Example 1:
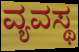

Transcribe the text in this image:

ವ್ಯವಸ್ಥ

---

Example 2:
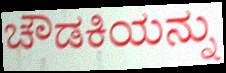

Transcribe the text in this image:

ಚೌಡಕಿಯನ್ನು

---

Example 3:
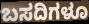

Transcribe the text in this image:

ಬಸದಿಗಳೂ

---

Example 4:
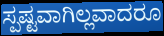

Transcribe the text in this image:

ಸ್ಪಷ್ಟವಾಗಿಲ್ಲವಾದರೂ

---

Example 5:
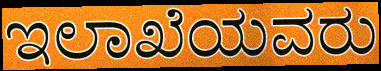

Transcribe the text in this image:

ಇಲಾಖೆಯವರು